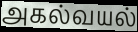
அகல்வயல்